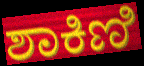
ಶಾಕಿಣಿ